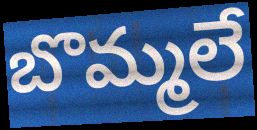
బొమ్మలే